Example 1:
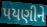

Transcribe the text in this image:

પયણીને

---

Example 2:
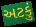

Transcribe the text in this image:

અટકું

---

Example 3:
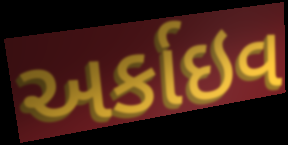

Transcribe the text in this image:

અર્કાઇવ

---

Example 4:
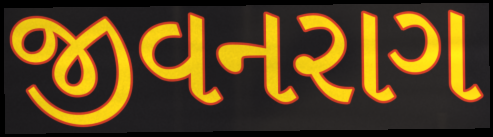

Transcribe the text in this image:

જીવનરાગ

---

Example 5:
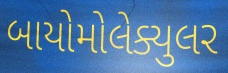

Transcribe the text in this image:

બાયોમોલેક્યુલર